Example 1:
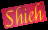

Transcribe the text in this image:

Shieh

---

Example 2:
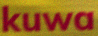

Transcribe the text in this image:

kuwa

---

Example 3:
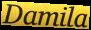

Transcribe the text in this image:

Damila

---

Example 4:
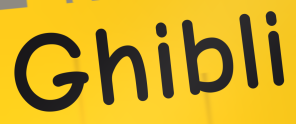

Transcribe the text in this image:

Ghibli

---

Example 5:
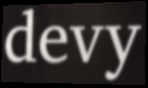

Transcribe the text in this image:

devy